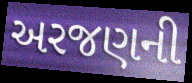
અરજણની